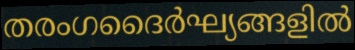
തരംഗദൈർഘ്യങ്ങളിൽ